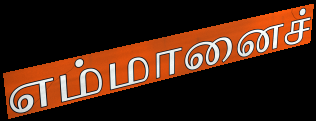
எம்மானைச்